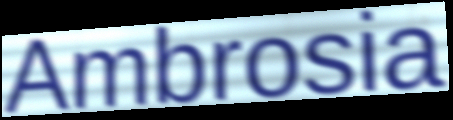
Ambrosia